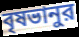
বৃষভানুর